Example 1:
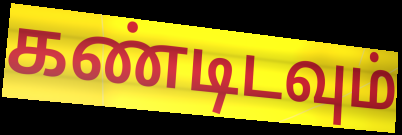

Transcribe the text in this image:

கண்டிடவும்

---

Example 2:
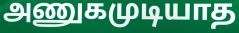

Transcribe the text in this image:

அணுகமுடியாத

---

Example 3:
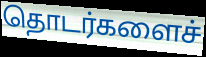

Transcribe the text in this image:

தொடர்களைச்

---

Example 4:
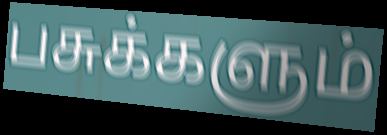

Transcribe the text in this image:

பசுக்களும்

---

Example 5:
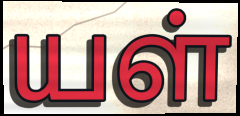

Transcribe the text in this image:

யள்